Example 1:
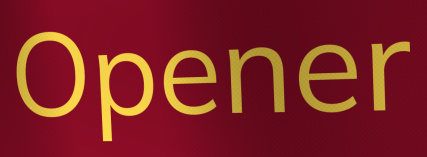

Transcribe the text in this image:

Opener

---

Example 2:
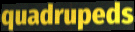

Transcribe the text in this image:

quadrupeds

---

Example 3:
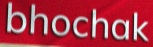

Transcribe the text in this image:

bhochak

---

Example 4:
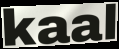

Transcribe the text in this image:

kaal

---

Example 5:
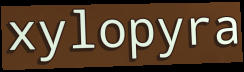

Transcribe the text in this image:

xylopyra